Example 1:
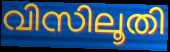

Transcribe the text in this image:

വിസിലൂതി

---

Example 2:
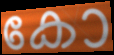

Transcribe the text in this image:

കോ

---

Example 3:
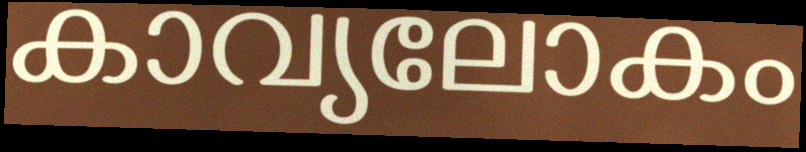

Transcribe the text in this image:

കാവ്യലോകം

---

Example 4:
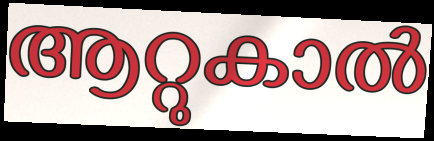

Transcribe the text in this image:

ആറ്റുകാൽ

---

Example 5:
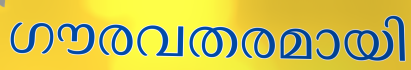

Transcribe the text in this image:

ഗൗരവതരമായി